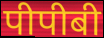
पीपीबी